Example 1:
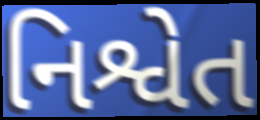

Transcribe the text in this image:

નિશ્વેત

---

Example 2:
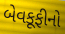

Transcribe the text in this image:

બેવકૂફીનો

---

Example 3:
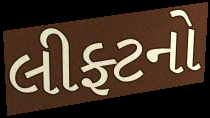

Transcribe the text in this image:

લીફ્ટનો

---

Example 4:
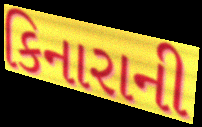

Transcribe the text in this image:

કિનારાની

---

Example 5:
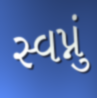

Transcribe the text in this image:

સ્વપ્નું